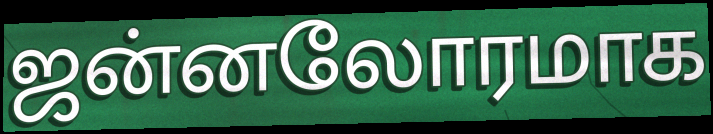
ஜன்னலோரமாக